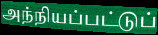
அந்நியப்பட்டுப்